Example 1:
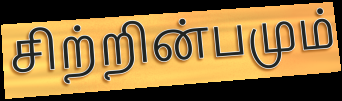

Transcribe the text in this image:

சிற்றின்பமும்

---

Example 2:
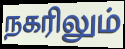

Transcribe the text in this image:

நகரிலும்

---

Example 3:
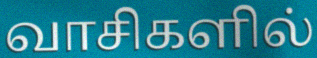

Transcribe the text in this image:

வாசிகளில்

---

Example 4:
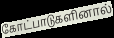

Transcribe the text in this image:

கோட்பாடுகளினால்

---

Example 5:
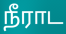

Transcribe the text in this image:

நீராட